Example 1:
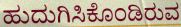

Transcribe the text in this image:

ಹುದುಗಿಸಿಕೊಂಡಿರುವ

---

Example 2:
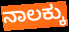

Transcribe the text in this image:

ನಾಲಕ್ಕು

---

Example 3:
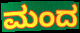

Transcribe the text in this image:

ಮಂದ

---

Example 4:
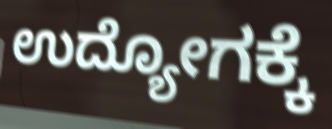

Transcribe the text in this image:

ಉದ್ಯೋಗಕ್ಕೆ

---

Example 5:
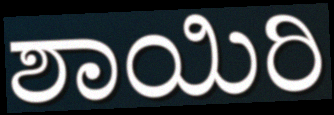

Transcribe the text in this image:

ಶಾಯಿರಿ